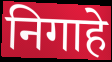
निगाहे